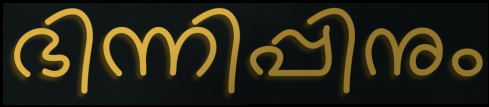
ഭിന്നിപ്പിനും